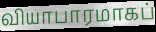
வியாபாரமாகப்